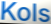
Kols